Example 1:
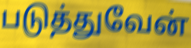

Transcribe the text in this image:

படுத்துவேன்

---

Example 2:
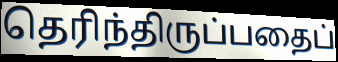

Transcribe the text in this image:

தெரிந்திருப்பதைப்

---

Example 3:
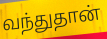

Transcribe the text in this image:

வந்துதான்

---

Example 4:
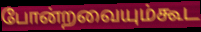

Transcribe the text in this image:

போன்றவையும்கூட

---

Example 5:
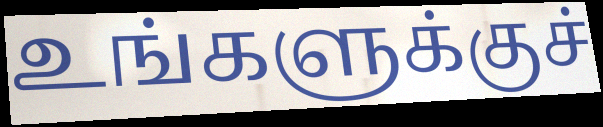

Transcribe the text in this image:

உங்களுக்குச்